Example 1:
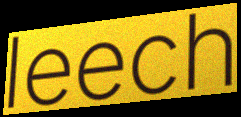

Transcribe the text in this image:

leech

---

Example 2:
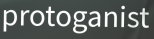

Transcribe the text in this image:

protoganist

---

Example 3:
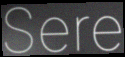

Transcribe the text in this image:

Sere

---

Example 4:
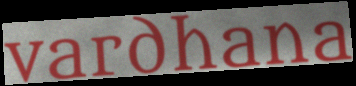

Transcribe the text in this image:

vardhana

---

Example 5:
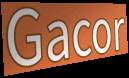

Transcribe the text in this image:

Gacor